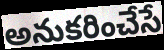
అనుకరించేసే